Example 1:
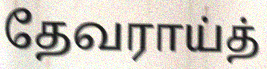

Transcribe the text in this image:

தேவராய்த்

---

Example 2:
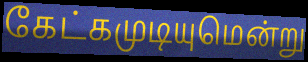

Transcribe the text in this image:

கேட்கமுடியுமென்று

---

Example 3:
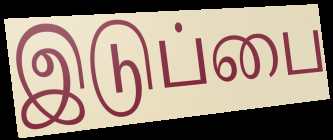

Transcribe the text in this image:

இடுப்பை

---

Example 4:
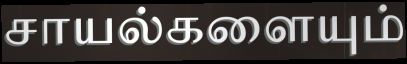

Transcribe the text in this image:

சாயல்களையும்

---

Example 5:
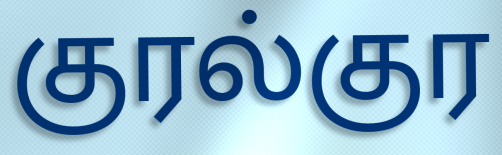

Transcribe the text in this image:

குரல்குர